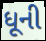
ધૂની